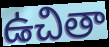
ఉచితా